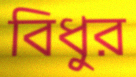
বিধুর